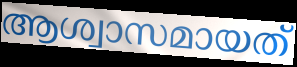
ആശ്വാസമായത്